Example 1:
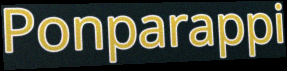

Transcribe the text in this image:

Ponparappi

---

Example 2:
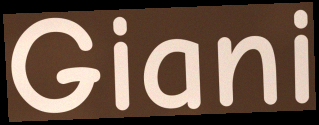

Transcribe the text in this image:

Giani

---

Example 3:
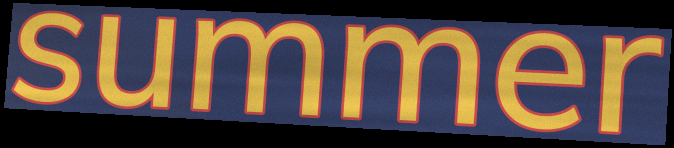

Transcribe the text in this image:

summer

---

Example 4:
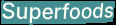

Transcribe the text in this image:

Superfoods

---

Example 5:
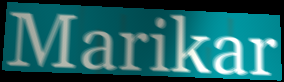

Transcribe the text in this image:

Marikar